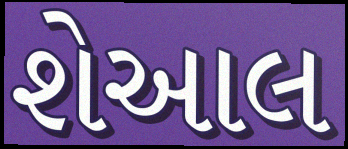
શેઆલ